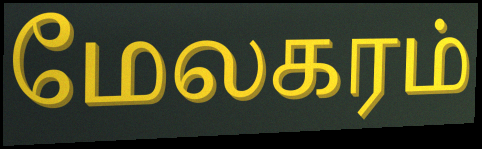
மேலகரம்